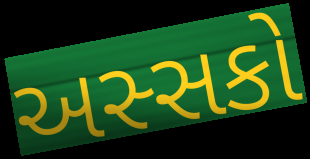
અસ્સકો